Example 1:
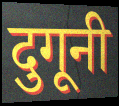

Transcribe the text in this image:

दुगूनी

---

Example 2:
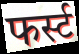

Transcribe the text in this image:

फर्स्‍ट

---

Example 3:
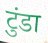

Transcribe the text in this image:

टुंडा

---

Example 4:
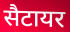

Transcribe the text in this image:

सैटायर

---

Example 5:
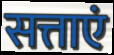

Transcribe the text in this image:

सत्ताएं